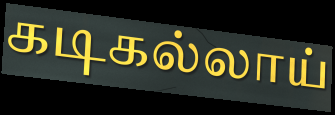
கடிகல்லாய்